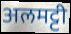
अलमट्टी